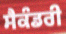
ਸੈਕੰਡਰੀ